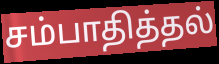
சம்பாதித்தல்